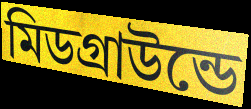
মিডগ্রাউন্ডে